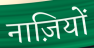
नाज़ियों